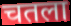
चतला